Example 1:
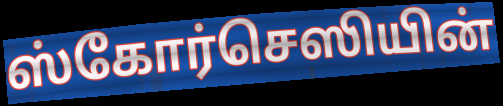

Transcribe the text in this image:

ஸ்கோர்செஸியின்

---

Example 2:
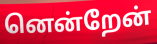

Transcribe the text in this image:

னென்றேன்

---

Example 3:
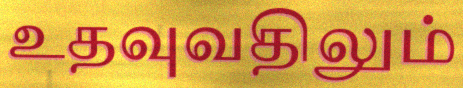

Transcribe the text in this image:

உதவுவதிலும்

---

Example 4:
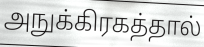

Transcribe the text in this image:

அநுக்கிரகத்தால்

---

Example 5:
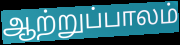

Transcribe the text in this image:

ஆற்றுப்பாலம்